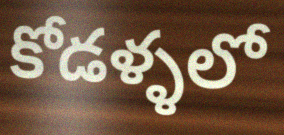
కోడళ్ళలో